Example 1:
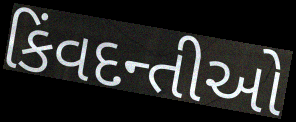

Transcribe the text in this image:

કિંવદન્તીઓ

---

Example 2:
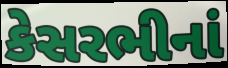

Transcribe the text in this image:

કેસરભીનાં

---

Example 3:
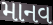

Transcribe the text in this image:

માનવ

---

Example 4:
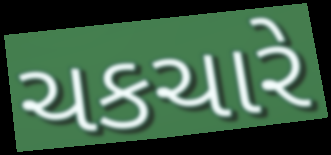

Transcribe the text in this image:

ચકચારે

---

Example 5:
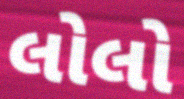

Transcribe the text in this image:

લોલો